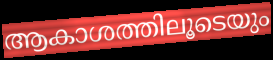
ആകാശത്തിലൂടെയും